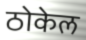
ठोकेल